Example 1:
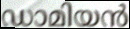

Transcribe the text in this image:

ഡാമിയൻ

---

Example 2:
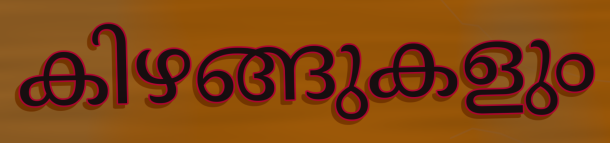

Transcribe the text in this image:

കിഴങ്ങുകളും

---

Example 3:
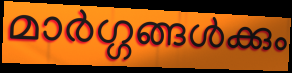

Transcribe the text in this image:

മാർഗ്ഗങ്ങൾക്കും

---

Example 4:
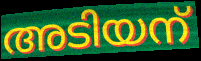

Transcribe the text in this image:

അടിയന്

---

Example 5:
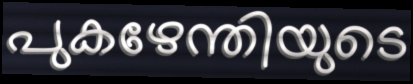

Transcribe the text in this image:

പുകഴേന്തിയുടെ